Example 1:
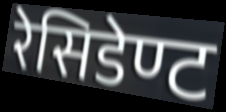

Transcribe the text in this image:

रेसिडेण्ट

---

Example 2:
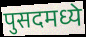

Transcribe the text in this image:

पुसदमध्ये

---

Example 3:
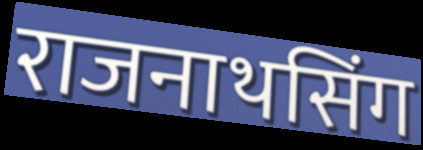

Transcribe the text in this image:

राजनाथसिंग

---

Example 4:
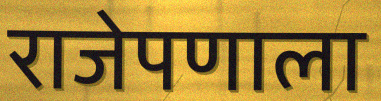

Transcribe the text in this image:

राजेपणाला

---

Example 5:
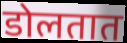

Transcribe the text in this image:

डोलतात